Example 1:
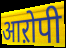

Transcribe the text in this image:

आऱोपी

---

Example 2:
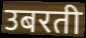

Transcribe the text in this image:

उबरती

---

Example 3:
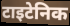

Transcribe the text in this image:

टाइटेनिक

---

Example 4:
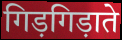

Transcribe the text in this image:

गिड़गिड़ाते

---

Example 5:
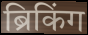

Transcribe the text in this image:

ब्रिकिंग